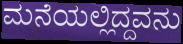
ಮನೆಯಲ್ಲಿದ್ದವನು